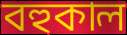
বহুকাল